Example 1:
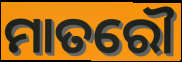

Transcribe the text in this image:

ମାତରୌ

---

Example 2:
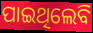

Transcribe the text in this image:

ପାଇଥିଲେବି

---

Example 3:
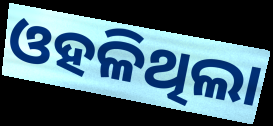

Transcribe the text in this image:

ଓହଳିଥିଲା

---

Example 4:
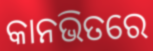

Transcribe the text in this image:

କାନଭିତରେ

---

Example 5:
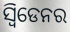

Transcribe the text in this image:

ସ୍ୱିଡେନର